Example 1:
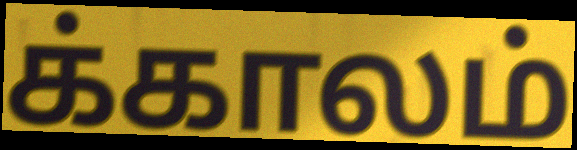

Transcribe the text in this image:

க்காலம்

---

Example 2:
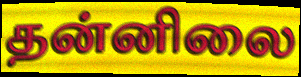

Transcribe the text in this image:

தன்னிலை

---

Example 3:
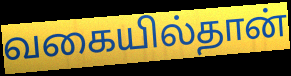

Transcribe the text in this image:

வகையில்தான்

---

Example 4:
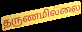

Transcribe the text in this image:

தருணமில்லை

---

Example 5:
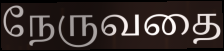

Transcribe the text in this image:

நேருவதை